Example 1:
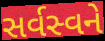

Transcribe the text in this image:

સર્વસ્વને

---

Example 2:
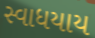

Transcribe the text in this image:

સ્વાધયાય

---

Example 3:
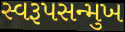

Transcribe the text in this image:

સ્વરૂપસન્મુખ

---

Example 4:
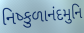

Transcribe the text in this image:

નિષ્કુળાનંદમુનિ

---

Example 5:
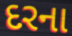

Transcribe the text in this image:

દરના